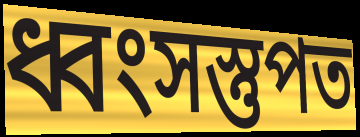
ধ্বংসস্তুপত